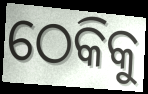
ଠେକିକୁ